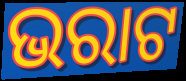
ଭରାଟ